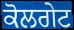
ਕੋਲਗੇਟ